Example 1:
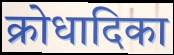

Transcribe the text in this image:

क्रोधादिका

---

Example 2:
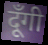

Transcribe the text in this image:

दूँगी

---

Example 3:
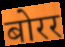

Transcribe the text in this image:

बोरर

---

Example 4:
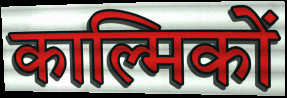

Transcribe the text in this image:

काल्मिकों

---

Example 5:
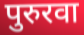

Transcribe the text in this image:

पुरुरवा